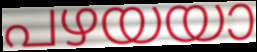
പഴയയാ